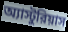
অ্যাস্টুরিয়াস